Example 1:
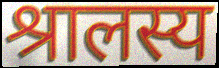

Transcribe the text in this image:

श्रालस्य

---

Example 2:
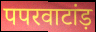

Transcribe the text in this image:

पपरवाटांड़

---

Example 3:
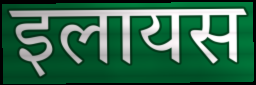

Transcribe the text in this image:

इलायस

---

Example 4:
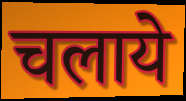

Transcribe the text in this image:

चलाये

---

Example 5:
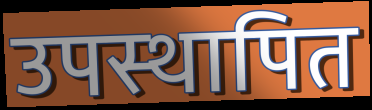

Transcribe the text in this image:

उपस्थापित